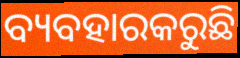
ବ୍ୟବହାରକରୁଛି